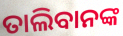
ତାଲିବାନଙ୍କ